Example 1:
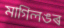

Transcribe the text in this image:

মাগিলঙৰ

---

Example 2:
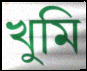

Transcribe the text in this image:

খুমি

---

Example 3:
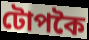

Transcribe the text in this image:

টোপকৈ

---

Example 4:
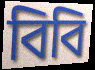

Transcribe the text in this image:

বিবি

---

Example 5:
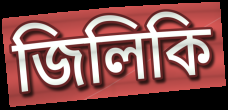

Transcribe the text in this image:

জিলিকি